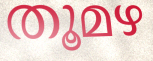
തൂമഴ